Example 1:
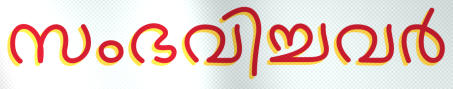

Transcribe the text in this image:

സംഭവിച്ചവർ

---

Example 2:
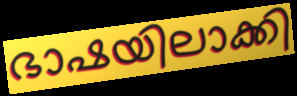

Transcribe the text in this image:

ഭാഷയിലാക്കി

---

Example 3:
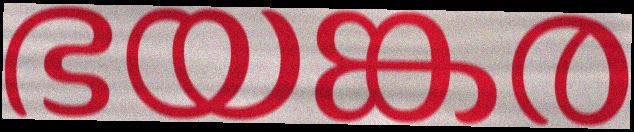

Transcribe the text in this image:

ഭയങ്കര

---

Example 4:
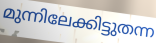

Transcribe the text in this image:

മുന്നിലേക്കിട്ടുതന്ന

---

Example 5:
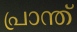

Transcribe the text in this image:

പ്രാന്ത്